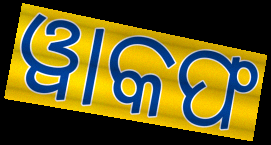
ୱାକଫ